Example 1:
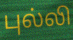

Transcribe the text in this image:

புல்லி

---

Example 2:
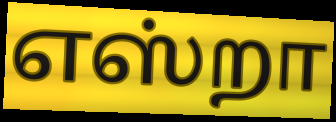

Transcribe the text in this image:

எஸ்றா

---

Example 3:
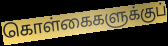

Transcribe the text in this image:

கொள்கைகளுக்குப்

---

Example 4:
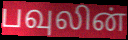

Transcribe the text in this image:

பவுலின்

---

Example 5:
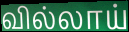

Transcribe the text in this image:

வில்லாய்